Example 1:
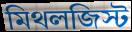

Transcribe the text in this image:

মিথলজিস্ট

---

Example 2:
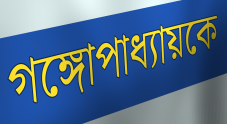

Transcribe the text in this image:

গঙ্গোপাধ্যায়কে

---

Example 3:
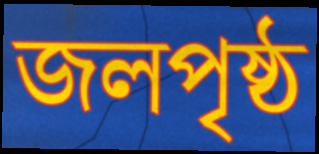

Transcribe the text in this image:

জলপৃষ্ঠ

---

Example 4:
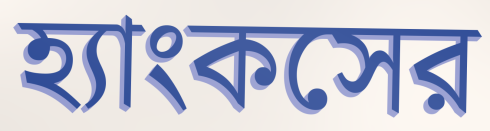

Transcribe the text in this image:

হ্যাংকসের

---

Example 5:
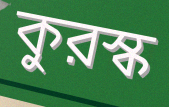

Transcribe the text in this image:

কুরস্ক